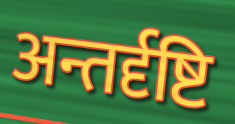
अन्तर्दृष्टि